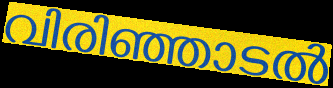
വിരിഞ്ഞാടൽ